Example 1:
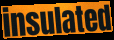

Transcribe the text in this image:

insulated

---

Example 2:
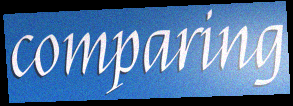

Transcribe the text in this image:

comparing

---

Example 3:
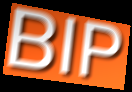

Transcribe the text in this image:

BIP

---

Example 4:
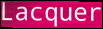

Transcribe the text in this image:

Lacquer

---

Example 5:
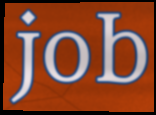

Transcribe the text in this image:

job